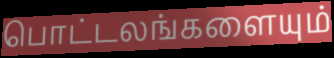
பொட்டலங்களையும்